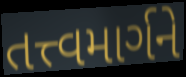
તત્ત્વમાર્ગને